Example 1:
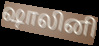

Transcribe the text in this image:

ஷாலினி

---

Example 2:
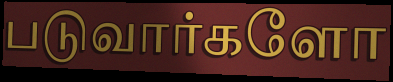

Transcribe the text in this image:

படுவார்களோ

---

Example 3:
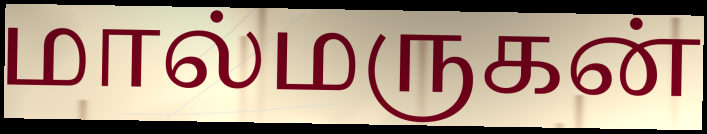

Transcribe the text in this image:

மால்மருகன்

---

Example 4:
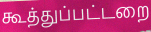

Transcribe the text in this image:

கூத்துப்பட்டறை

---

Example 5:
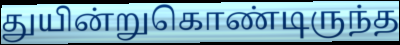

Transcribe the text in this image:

துயின்றுகொண்டிருந்த